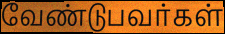
வேண்டுபவர்கள்